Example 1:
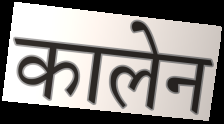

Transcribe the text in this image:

कालेन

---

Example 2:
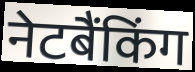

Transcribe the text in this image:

नेटबैंकिंग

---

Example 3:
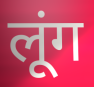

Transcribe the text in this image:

लूंग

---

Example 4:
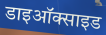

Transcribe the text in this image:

डाइऑक्साइड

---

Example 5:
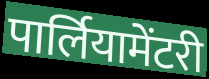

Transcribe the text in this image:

पार्लियामेंटरी